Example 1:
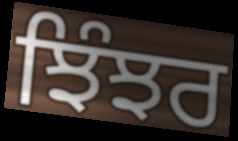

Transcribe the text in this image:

ਝਿੰਝਰ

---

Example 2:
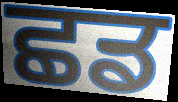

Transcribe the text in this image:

ਛਡ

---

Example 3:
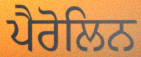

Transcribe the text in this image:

ਪੈਰੋਲਿਨ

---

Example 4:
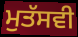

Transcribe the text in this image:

ਮੁਤੱਸਵੀ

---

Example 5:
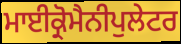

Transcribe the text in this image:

ਮਾਈਕ੍ਰੋਮੈਨੀਪੁਲੇਟਰ